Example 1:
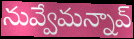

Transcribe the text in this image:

నువ్వేమన్నావ్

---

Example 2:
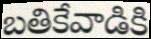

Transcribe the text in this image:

బతికేవాడికి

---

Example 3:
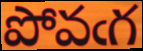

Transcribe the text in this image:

పోవఁగ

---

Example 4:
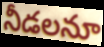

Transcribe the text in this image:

నీడలనూ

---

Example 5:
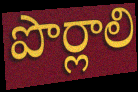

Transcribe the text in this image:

పొర్లాలి